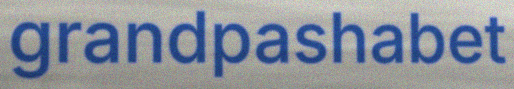
grandpashabet